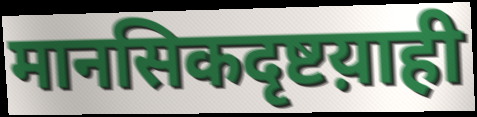
मानसिकदृष्टय़ाही